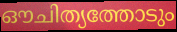
ഔചിത്യത്തോടും